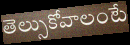
తెల్సుకోవాలంటే